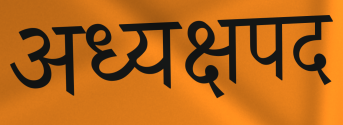
अध्यक्षपद